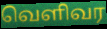
வெளிவர